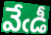
వేఁడీ